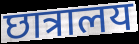
छात्रालय